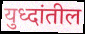
युध्दांतील